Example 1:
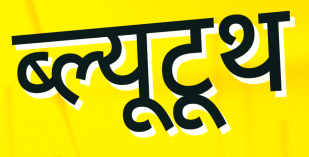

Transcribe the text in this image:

ब्ल्यूटूथ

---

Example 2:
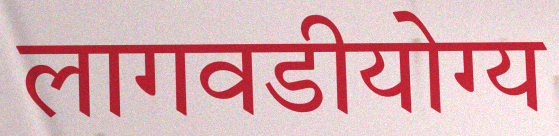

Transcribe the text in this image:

लागवडीयोग्य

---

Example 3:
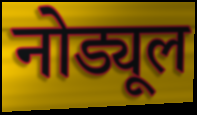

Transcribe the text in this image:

नोड्यूल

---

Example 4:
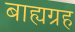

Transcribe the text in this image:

बाह्यग्रह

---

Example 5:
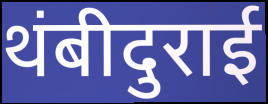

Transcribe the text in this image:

थंबीदुराई